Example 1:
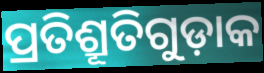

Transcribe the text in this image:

ପ୍ରତିଶ୍ରୂତିଗୁଡ଼ାକ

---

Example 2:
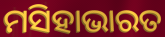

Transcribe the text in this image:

ମସିହାଭାରତ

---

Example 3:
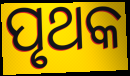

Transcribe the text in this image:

ପୃଥକ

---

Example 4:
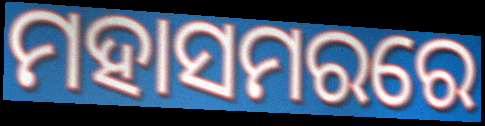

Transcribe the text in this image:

ମହାସମରରେ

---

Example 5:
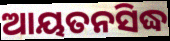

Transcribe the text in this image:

ଆୟତନସିଦ୍ଧ